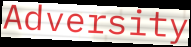
Adversity